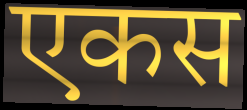
एकस